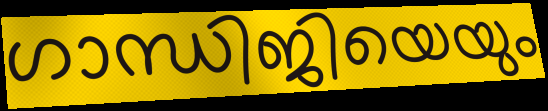
ഗാന്ധിജിയെയും